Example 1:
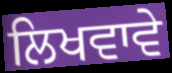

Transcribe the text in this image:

ਲਿਖਵਾਵੇ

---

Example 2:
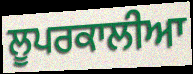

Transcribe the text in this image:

ਲੂਪਰਕਾਲੀਆ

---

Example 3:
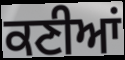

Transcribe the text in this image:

ਕਣੀਆਂ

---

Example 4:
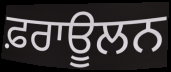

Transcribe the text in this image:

ਫ਼ਰਾਊਲਨ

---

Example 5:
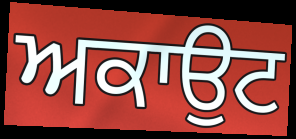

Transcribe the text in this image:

ਅਕਾਉਟ